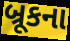
બ્રૂકના